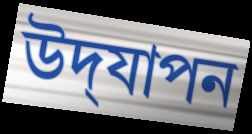
উদ্‌যাপন